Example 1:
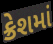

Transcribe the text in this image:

ક્રેશમાં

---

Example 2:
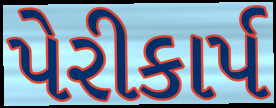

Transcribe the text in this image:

પેરીકાર્પ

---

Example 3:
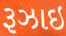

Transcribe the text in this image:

રૂઝાઇ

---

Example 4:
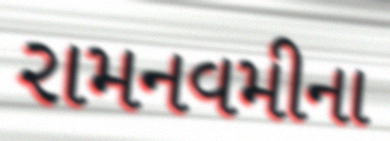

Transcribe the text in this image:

રામનવમીના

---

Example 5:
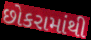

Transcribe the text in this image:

છોકરામાંથી